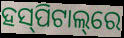
ହସ୍‌ପିଟାଲ୍‌ରେ